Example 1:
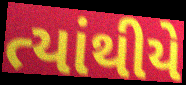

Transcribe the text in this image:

ત્યાંથીયે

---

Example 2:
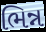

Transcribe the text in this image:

ભિન્ન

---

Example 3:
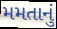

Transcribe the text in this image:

મમતાનું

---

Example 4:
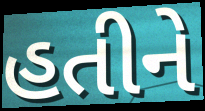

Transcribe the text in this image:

હતીને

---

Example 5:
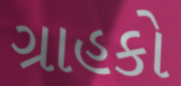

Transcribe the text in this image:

ગ્રાહકો